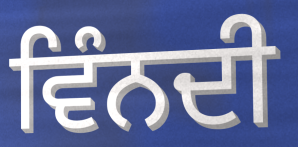
ਵਿੰਨਦੀ